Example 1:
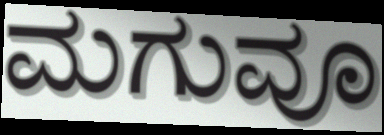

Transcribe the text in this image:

ಮಗುವೂ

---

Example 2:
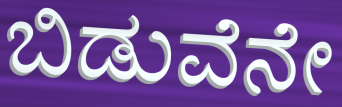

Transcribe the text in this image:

ಬಿಡುವೆನೇ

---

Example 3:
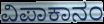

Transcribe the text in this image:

ವಿಪಾಕಾನಂ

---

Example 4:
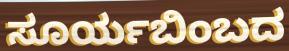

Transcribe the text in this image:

ಸೂರ್ಯಬಿಂಬದ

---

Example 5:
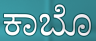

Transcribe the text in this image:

ಕಾಬೊ